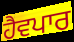
ਹੈਵਪਾਰ